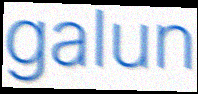
galun